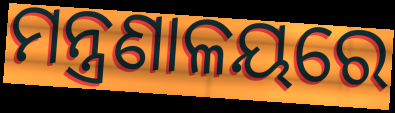
ମନ୍ତ୍ରଣାଳୟରେ